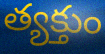
త్యక్తుం